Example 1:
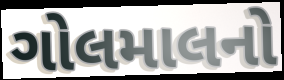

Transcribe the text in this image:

ગોલમાલનો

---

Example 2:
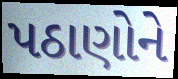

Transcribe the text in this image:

પઠાણોને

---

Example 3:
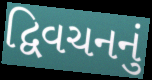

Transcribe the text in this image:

દ્વિવચનનું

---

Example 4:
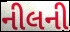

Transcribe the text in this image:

નીલની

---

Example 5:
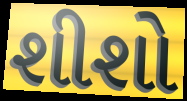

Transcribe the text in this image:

શીશો